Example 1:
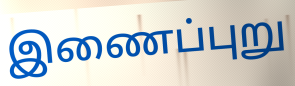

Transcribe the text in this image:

இணைப்புறு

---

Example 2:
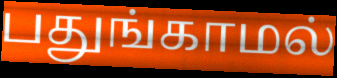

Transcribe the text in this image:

பதுங்காமல்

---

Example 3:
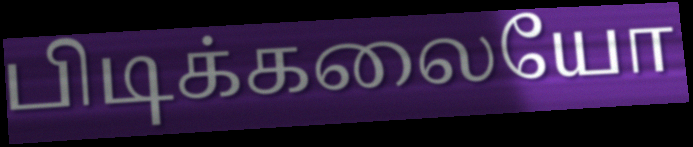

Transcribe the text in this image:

பிடிக்கலையோ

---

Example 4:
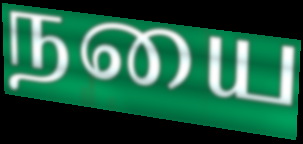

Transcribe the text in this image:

நயை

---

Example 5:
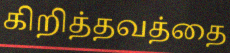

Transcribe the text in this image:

கிறித்தவத்தை